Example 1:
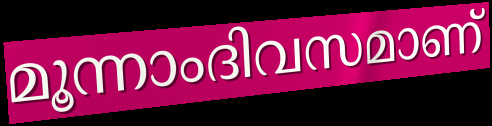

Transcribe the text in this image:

മൂന്നാംദിവസമാണ്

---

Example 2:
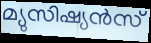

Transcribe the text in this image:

മ്യുസിഷ്യൻസ്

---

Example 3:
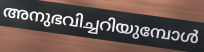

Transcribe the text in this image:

അനുഭവിച്ചറിയുമ്പോൾ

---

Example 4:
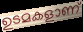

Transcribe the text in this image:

ഉടമകളാണ്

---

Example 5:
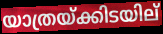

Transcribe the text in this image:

യാത്രയ്ക്കിടയില്